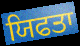
ਯਿਫਤਾ